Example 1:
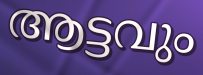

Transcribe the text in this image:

ആട്ടവും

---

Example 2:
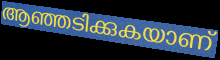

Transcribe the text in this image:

ആഞ്ഞടിക്കുകയാണ്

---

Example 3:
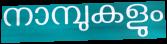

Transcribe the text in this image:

നാമ്പുകളും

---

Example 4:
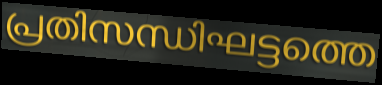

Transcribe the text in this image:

പ്രതിസന്ധിഘട്ടത്തെ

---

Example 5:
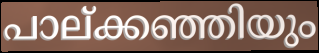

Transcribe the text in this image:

പാല്ക്കഞ്ഞിയും